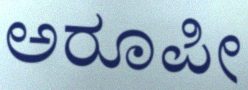
ಅರೂಪೀ